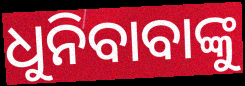
ଧୁନିବାବାଙ୍କୁ